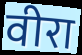
वीरा